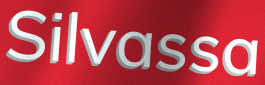
Silvassa